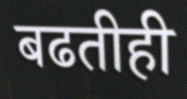
बढतीही